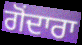
ਗੋਂਦਾਰਾ